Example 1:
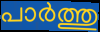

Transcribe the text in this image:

പാർത്തു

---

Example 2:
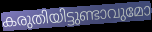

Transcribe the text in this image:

കരുതിയിട്ടുണ്ടാവുമോ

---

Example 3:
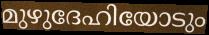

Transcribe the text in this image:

മുഴുദേഹിയോടും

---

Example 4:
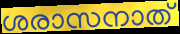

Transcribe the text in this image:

ശരാസനാത്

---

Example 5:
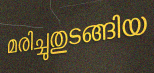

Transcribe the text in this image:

മരിച്ചുതുടങ്ങിയ